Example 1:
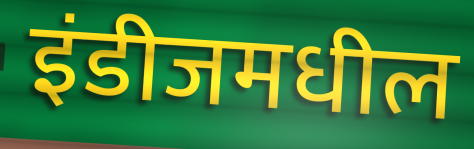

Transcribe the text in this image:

इंडीजमधील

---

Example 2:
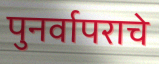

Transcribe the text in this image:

पुनर्वापराचे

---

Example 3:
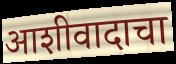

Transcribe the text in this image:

आशीवादाचा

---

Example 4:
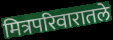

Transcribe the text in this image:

मित्रपरिवारातले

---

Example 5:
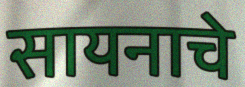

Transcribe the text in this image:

सायनाचे